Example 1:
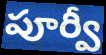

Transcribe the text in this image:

పూర్వీ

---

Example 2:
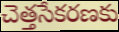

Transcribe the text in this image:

చెత్తసేకరణకు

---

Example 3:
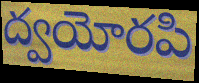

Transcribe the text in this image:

ద్వయోరపి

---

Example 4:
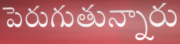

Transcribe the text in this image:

పెరుగుతున్నారు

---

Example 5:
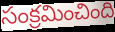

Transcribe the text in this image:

సంక్రమించింది